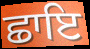
ਛਾਇ